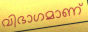
വിഭാഗമാണ്